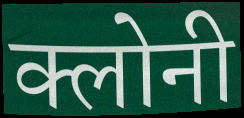
क्लोनी